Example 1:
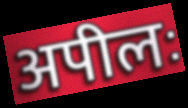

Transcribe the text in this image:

अपीलः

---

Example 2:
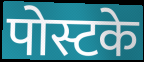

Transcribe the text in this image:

पोस्टके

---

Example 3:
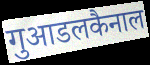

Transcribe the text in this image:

गुआडलकैनाल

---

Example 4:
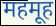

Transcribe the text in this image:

महमूह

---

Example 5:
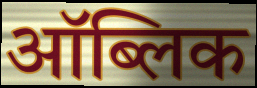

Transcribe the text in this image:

ऑब्लिक